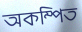
অকম্পিত